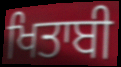
ਖਿਤਾਬੀ